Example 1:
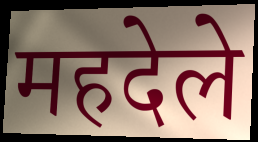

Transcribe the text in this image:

महदेले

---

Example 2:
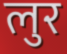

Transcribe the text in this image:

लुर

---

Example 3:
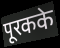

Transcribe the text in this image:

पूरकके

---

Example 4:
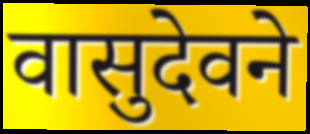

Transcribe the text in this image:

वासुदेवने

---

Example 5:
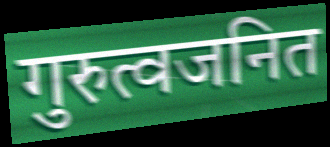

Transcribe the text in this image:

गुरुत्वजनित